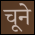
चूने